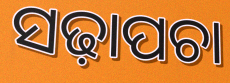
ସଢ଼ାପଚା